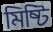
মিষ্টি